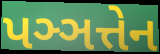
પઞ્ઞત્તેન